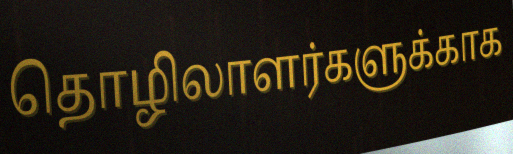
தொழிலாளர்களுக்காக